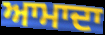
ਆਮਾਦਾ